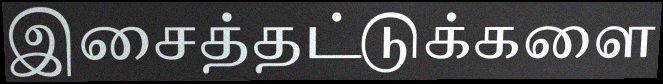
இசைத்தட்டுக்களை